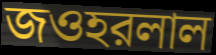
জওহরলাল